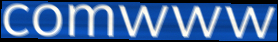
comwww